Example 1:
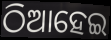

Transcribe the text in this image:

ଠିଆହେଇ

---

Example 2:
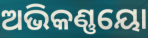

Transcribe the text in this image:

ଅଭିକଣ୍ଣୟୋ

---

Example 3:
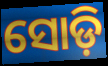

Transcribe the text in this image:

ସୋଡ଼ି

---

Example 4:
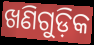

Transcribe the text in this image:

ଖଣିଗୁଡ଼ିକ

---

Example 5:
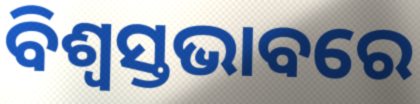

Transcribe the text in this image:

ବିଶ୍ୱସ୍ତଭାବରେ